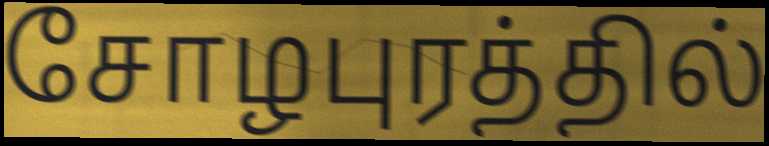
சோழபுரத்தில்